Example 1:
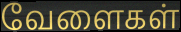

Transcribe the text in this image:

வேளைகள்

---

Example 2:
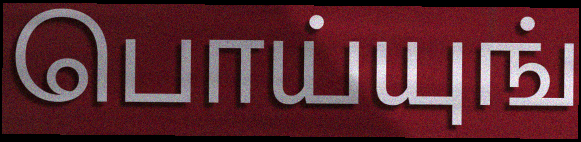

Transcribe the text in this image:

பொய்யுங்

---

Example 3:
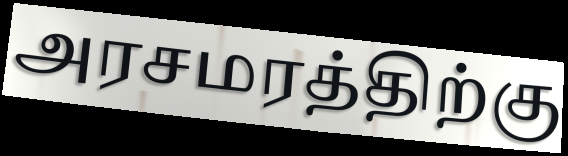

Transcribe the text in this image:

அரசமரத்திற்கு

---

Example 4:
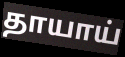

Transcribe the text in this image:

தாயாய்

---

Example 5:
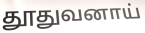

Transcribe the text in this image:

தூதுவனாய்